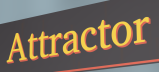
Attractor